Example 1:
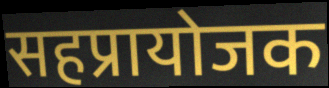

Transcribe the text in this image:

सहप्रायोजक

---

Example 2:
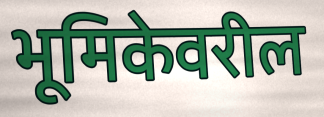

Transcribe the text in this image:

भूमिकेवरील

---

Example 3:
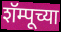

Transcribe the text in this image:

शॅम्पूच्या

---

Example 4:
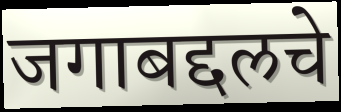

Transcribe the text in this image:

जगाबद्दलचे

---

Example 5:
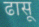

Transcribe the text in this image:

ढासू